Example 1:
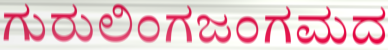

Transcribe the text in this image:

ಗುರುಲಿಂಗಜಂಗಮದ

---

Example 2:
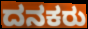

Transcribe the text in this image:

ದನಕರು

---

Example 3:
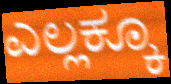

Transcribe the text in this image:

ಎಲ್ಲಕ್ಕೂ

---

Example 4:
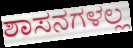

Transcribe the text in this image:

ಶಾಸನಗಳಲ್ಲ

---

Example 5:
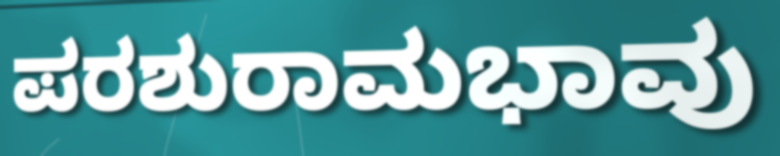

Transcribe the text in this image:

ಪರಶುರಾಮಭಾವು